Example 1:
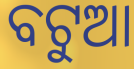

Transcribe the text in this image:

ବଟୁଆ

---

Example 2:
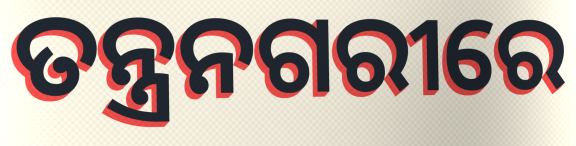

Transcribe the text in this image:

ତନ୍ତ୍ରନଗରୀରେ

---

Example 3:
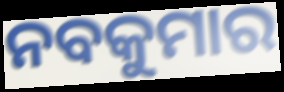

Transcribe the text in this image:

ନବକୁମାର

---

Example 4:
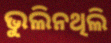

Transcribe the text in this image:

ଭୁଲିନଥିଲି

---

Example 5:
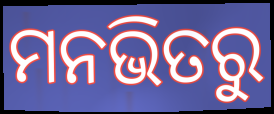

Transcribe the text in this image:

ମନଭିତରୁ